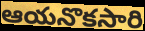
ఆయనొకసారి